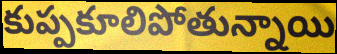
కుప్పకూలిపోతున్నాయి